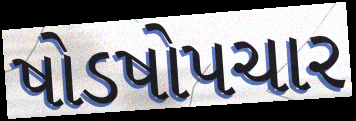
ષોડષોપચાર